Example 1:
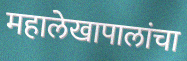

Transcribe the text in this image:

महालेखापालांचा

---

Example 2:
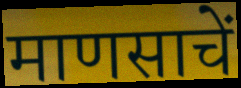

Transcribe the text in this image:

माणसाचें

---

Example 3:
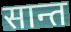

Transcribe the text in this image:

सान्त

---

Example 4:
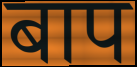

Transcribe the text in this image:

बाप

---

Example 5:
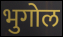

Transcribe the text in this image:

भुगोल